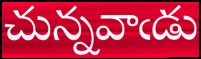
చున్నవాఁడు